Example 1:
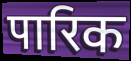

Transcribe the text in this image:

पारिक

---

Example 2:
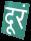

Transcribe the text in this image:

दूरं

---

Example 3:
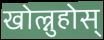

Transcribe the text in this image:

खोल्नुहोस्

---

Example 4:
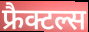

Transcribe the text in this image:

फ्रैक्टल्स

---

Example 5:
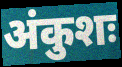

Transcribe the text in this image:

अंकुशः